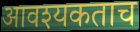
आवश्यकताच